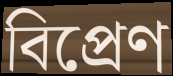
বিপ্রেণ